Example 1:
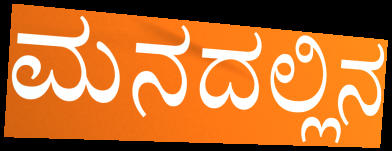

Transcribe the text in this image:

ಮನದಲ್ಲಿನ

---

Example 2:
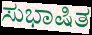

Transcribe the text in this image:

ಸುಭಾಷಿತ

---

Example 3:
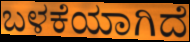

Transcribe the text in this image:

ಬಳಕೆಯಾಗಿದೆ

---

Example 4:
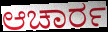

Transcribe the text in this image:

ಆಚಾರ್ರ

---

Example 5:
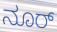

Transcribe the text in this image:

ನೂರ್